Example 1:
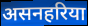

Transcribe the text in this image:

असनहरिया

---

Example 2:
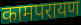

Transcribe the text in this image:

कामपरायण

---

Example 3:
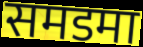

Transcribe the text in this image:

समडमा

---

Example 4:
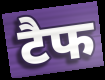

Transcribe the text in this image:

टैफ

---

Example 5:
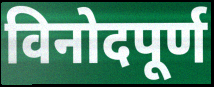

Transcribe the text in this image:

विनोदपूर्ण